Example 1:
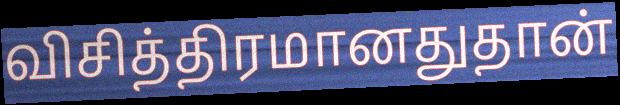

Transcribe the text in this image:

விசித்திரமானதுதான்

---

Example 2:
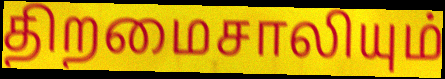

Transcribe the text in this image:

திறமைசாலியும்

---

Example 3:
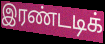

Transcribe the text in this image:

இரண்டடிக்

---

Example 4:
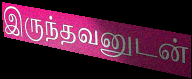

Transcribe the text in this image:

இருந்தவனுடன்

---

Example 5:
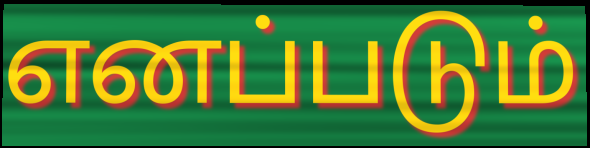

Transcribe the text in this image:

எனப்படும்